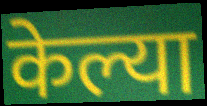
केल्या